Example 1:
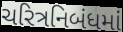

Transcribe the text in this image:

ચરિત્રનિબંધમાં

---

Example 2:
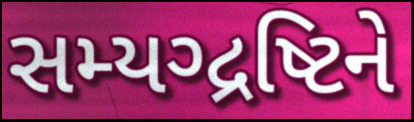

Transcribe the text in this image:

સમ્યગ્દ્રષ્ટિને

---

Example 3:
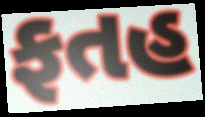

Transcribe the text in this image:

ફતહ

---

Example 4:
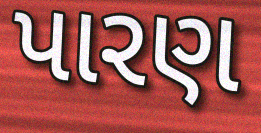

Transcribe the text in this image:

પારણ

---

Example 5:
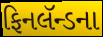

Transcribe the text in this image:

ફિનલૅન્ડના